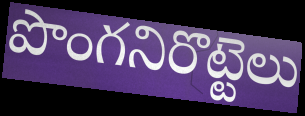
పొంగనిరొట్టెలు